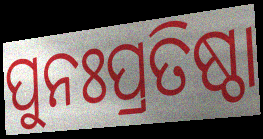
ପୁନଃପ୍ରତିଷ୍ଠା